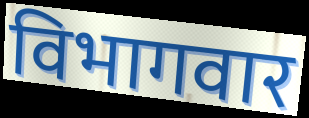
विभागवार